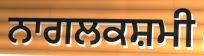
ਨਾਗਲਕਸ਼ਮੀ